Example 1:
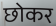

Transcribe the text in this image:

छोकर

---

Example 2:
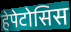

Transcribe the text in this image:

हेपेटोसिस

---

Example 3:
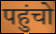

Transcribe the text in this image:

पहुंचो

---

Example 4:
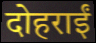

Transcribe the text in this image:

दोहराईं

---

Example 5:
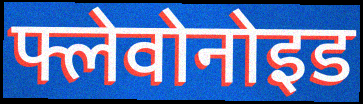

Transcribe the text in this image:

फ्लेवोनोइड